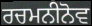
ਰਚਮਨੀਨੋਵ